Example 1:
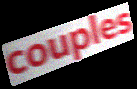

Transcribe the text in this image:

couples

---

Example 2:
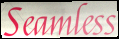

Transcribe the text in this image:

Seamless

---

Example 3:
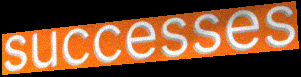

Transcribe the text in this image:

successes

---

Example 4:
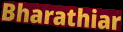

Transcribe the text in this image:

Bharathiar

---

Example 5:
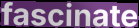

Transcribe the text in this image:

fascinate